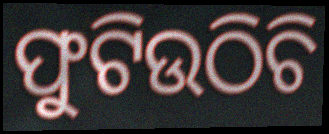
ଫୁଟିଉଠିଚି